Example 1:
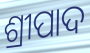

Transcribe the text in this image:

ଶ୍ରୀପାଦ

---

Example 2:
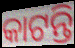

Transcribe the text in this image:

କାଟନ୍ତି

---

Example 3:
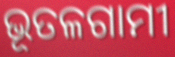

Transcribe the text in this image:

ଭୂତଳଗାମୀ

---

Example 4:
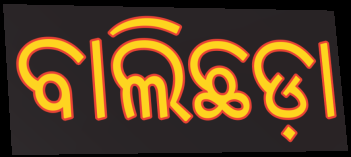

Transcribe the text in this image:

ବାଲିଛଡ଼ା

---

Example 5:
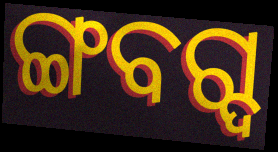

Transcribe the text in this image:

ଙ୍ଗବଗ୍ଦ